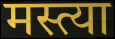
मस्त्या